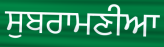
ਸੁਬਰਾਮਣੀਆ